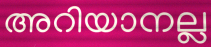
അറിയാനല്ല